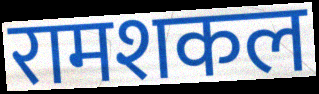
रामशकल